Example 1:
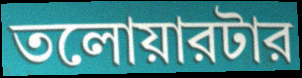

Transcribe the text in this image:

তলোয়ারটার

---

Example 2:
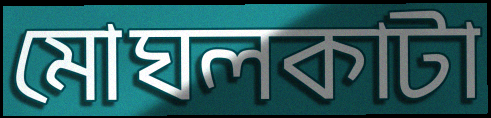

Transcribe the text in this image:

মোঘলকাটা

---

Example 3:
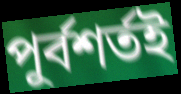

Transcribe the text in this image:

পূর্বশর্তই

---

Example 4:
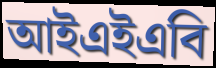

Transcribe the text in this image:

আইএইএবি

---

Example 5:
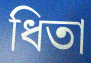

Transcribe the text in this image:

ধিতা